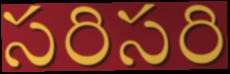
సరిసరి